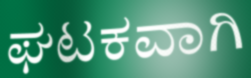
ಘಟಕವಾಗಿ